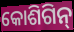
କୋଶିଗିନ୍